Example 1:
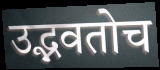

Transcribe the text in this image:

उद्भवतोच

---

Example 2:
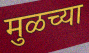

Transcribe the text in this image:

मुळच्या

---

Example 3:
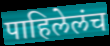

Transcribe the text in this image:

पाहिलेलंच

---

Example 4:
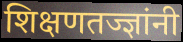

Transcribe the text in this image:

शिक्षणतज्ज्ञांनी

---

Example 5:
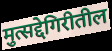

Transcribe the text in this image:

मुत्सद्देगिरीतील